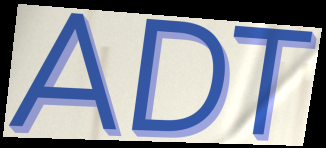
ADT